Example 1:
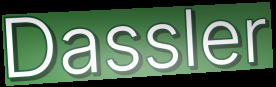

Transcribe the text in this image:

Dassler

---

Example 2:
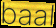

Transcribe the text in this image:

baal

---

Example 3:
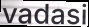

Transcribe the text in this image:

vadasi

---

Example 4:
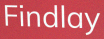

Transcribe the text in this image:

Findlay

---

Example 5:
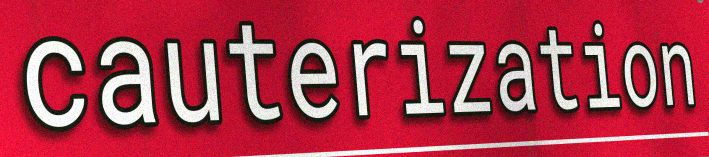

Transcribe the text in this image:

cauterization